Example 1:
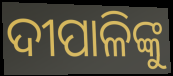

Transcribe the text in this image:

ଦୀପାଳିଙ୍କୁ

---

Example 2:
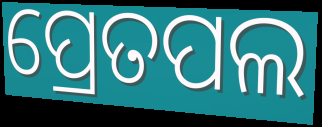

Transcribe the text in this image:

ପ୍ରେତପଲ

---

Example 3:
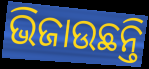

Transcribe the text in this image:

ଭିଜାଉଛନ୍ତି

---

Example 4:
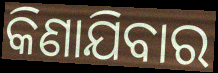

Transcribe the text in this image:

କିଣାଯିବାର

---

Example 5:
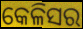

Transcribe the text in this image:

କେଳିସର